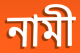
নামী